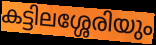
കട്ടിലശ്ശേരിയും